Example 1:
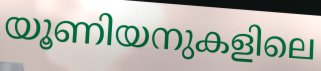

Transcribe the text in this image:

യൂണിയനുകളിലെ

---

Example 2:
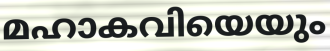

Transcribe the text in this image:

മഹാകവിയെയും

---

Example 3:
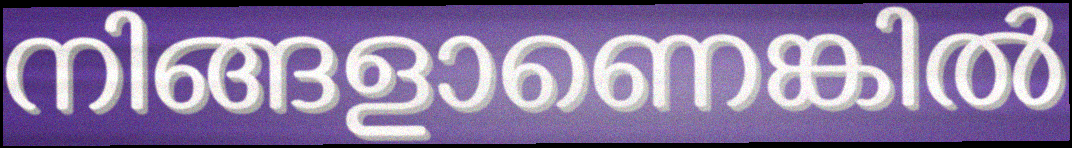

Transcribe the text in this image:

നിങ്ങളാണെങ്കിൽ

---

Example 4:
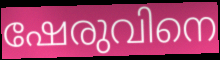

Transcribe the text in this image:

ഷേരുവിനെ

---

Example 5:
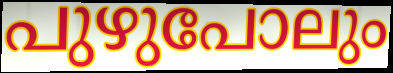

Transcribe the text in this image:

പുഴുപോലും